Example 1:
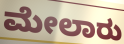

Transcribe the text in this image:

ಮೇಲಾರು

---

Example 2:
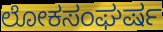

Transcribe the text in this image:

ಲೋಕಸಂಘರ್ಷ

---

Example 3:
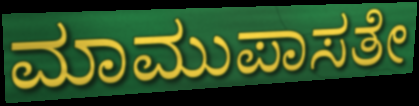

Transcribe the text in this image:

ಮಾಮುಪಾಸತೇ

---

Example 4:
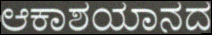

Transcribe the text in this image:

ಆಕಾಶಯಾನದ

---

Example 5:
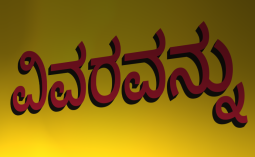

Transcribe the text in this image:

ವಿವರವನ್ನು